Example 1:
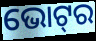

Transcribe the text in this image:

ଭୋଟ୍‍ର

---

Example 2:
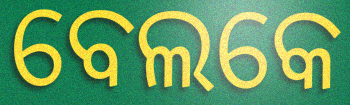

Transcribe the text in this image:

ବେଲକେ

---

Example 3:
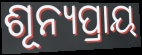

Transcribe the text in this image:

ଶୂନ୍ୟପ୍ରାୟ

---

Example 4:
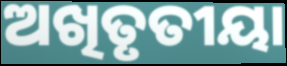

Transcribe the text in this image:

ଅଖିତୃତୀୟା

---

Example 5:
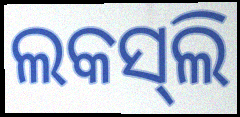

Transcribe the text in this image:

ଲକସ୍‍ଲି